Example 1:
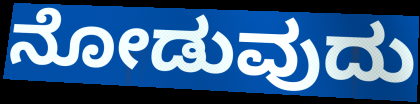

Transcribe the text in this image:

ನೋಡುವುದು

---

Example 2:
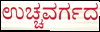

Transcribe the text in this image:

ಉಚ್ಚವರ್ಗದ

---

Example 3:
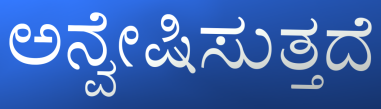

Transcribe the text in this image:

ಅನ್ವೇಷಿಸುತ್ತದೆ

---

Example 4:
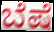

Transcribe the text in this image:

ಬೆಷೆ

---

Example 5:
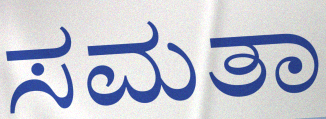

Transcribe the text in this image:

ಸಮತಾ